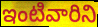
ఇంటివారిని